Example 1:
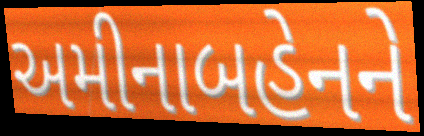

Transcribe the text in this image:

અમીનાબહેનને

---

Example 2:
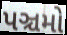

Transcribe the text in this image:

પઞ્ચમો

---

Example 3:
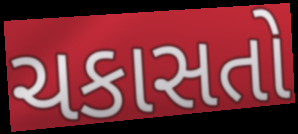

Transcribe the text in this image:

ચકાસતો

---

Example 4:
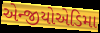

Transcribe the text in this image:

એન્જીયોએડિમા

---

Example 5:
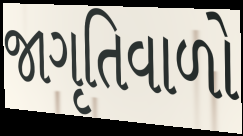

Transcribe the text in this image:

જાગૃતિવાળો